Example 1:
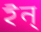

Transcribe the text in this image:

ইন্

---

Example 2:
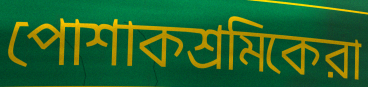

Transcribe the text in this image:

পোশাকশ্রমিকেরা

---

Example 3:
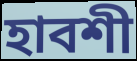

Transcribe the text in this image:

হাবশী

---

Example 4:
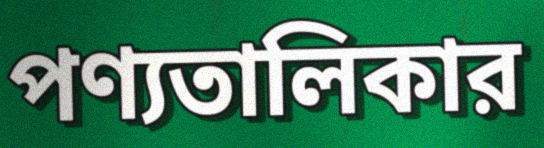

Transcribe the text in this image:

পণ্যতালিকার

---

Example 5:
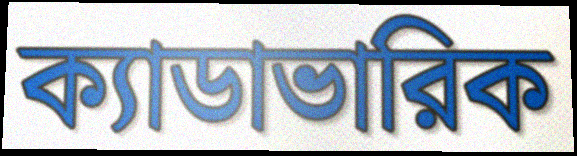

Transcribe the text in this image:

ক্যাডাভারিক